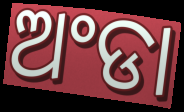
ଅଂଡା